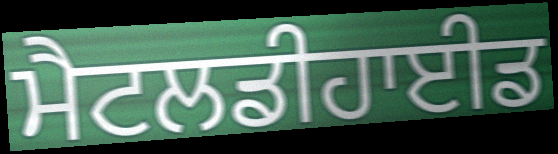
ਮੈਟਲਡੀਹਾਈਡ